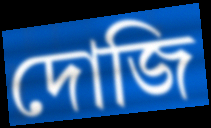
দোজি